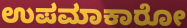
ಉಪಮಾಕಾರೋ